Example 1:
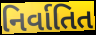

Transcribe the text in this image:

નિર્વાતિત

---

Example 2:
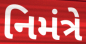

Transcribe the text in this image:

નિમંત્રે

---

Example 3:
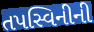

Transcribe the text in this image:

તપસ્વિનીની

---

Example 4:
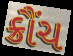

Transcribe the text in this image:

ક્રૌંચ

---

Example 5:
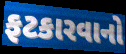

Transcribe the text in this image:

ફટકારવાનો